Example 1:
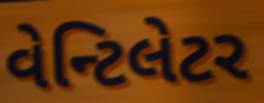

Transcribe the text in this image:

વેન્ટિલેટર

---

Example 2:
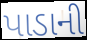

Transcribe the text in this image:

પાડાની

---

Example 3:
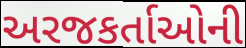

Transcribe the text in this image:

અરજકર્તાઓની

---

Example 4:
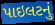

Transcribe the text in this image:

પાઇલટનું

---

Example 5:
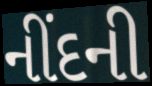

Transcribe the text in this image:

નીંદની